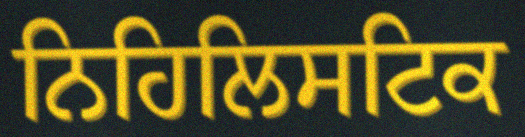
ਨਿਹਿਲਿਸਟਿਕ